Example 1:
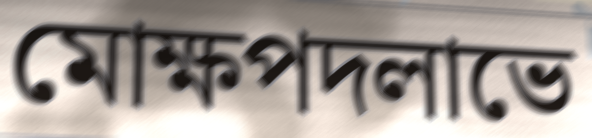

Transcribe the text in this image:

মোক্ষপদলাভে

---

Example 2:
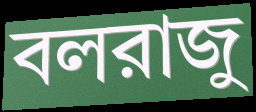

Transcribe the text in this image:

বলরাজু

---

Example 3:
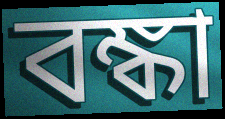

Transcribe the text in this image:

বঙ্কা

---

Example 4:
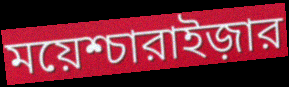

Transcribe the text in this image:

ময়েশ্চারাইজ়ার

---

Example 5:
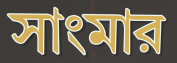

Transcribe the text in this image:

সাংমার